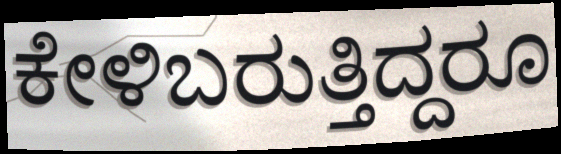
ಕೇಳಿಬರುತ್ತಿದ್ದರೂ